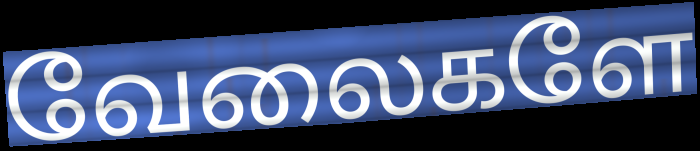
வேலைகளே